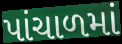
પાંચાળમાં